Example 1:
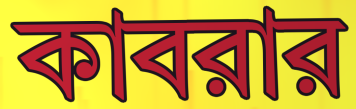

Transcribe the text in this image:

কাবরার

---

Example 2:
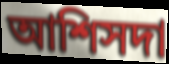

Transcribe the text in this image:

আশিসদা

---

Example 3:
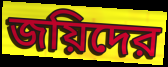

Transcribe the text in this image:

জয়িদের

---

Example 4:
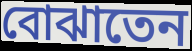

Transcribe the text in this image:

বোঝাতেন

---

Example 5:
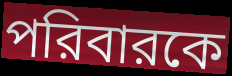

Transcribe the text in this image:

পরিবারকে